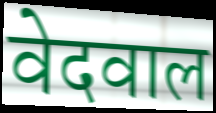
वेदवाल